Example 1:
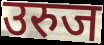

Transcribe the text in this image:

उरुज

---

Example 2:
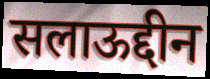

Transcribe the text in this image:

सलाऊद्दीन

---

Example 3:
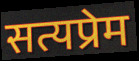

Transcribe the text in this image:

सत्यप्रेम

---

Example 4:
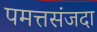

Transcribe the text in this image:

पमत्तसंजदा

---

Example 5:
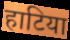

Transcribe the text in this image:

हाटिया